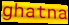
ghatna